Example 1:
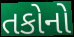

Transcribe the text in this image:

તકોનો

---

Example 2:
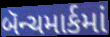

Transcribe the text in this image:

બૅન્ચમાર્કમાં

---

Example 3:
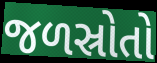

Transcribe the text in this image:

જળસ્રોતો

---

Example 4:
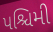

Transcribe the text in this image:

પશ્ચિમી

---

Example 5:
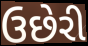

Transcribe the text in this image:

ઉછેરી